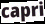
capri